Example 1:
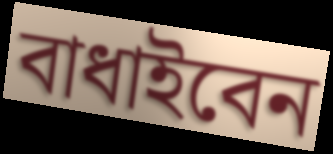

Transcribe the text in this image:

বাধাইবেন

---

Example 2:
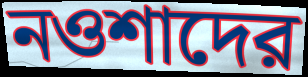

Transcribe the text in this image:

নওশাদের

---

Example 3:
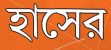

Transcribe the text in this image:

হাসের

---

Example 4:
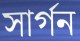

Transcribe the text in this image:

সার্গন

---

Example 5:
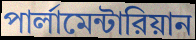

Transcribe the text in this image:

পার্লামেন্টারিয়ান